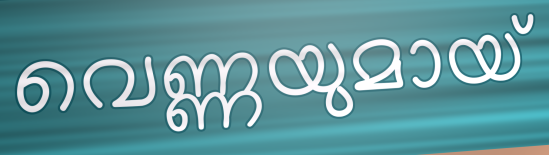
വെണ്ണയുമായ്